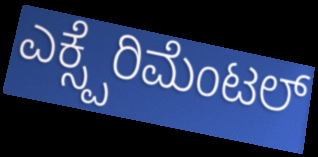
ಎಕ್ಸ್ಪೆರಿಮೆಂಟಲ್